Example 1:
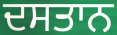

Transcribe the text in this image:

ਦਸਤਾਨ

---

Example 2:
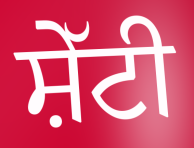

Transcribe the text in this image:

ਸ਼ੇੱਟੀ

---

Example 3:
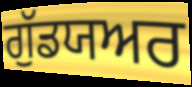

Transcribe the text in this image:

ਗੁੱਡਯਅਰ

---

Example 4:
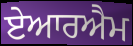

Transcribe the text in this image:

ਏਆਰਐਮ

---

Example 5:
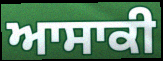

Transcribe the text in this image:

ਆਸਾਕੀ